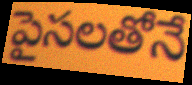
పైసలతోనే